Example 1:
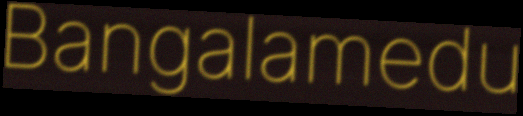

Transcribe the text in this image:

Bangalamedu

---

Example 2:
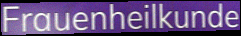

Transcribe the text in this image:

Frauenheilkunde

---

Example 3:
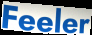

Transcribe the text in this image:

Feeler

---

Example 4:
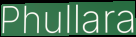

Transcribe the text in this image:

Phullara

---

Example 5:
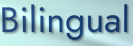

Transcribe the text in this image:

Bilingual